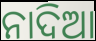
ନାଦିଆ